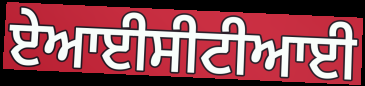
ਏਆਈਸੀਟੀਆਈ